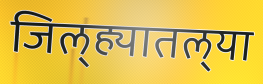
जिल्ह्यातल्या